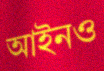
আইনও